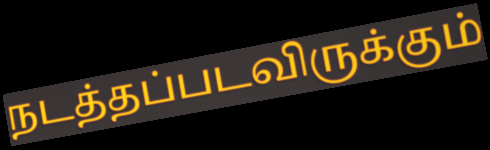
நடத்தப்படவிருக்கும்